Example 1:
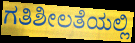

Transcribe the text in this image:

ಗತಿಶೀಲತೆಯಲ್ಲಿ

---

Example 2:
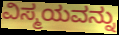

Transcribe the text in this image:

ವಿಸ್ಮಯವನ್ನು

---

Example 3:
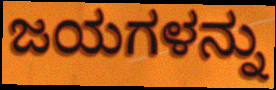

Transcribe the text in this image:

ಜಯಗಳನ್ನು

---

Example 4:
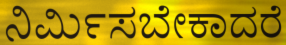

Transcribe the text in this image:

ನಿರ್ಮಿಸಬೇಕಾದರೆ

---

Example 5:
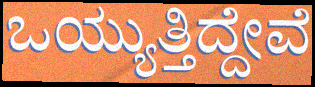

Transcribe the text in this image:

ಒಯ್ಯುತ್ತಿದ್ದೇವೆ